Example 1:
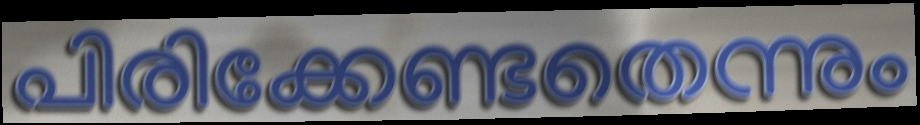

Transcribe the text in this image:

പിരിക്കേണ്ടതെന്നും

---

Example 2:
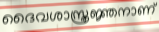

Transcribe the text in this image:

ദൈവശാസ്ത്രജ്ഞനാണ്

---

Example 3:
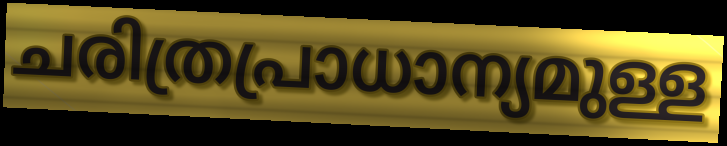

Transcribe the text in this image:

ചരിത്രപ്രാധാന്യമുള്ള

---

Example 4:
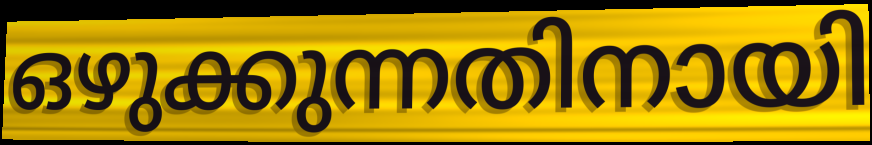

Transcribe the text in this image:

ഒഴുക്കുന്നതിനായി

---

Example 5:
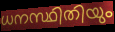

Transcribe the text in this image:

ധനസ്ഥിതിയും